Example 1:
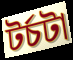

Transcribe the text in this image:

টর্চটা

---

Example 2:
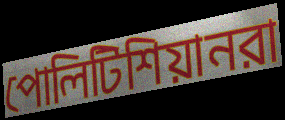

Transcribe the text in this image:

পোলিটিশিয়ানরা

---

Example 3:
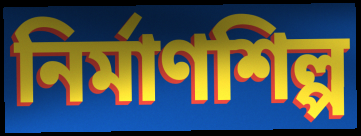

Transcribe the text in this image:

নির্মাণশিল্প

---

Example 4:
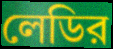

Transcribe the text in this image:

লেডির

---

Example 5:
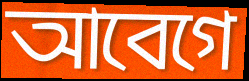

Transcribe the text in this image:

আবেগে